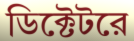
ডিক্টেটরে